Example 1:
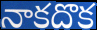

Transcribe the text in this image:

నాకదొక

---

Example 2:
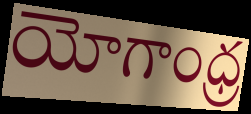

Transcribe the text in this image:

యోగాంధ్ర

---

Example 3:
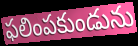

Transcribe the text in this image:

ఫలింపకుండును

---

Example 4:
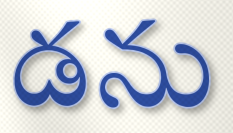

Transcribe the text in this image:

డను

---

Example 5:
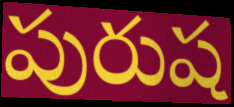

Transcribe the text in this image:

పురుష